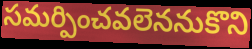
సమర్పించవలెననుకొని